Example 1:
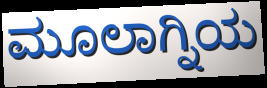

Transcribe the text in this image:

ಮೂಲಾಗ್ನಿಯ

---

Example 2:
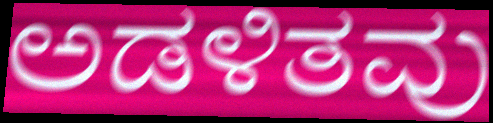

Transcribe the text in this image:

ಅಡಳಿತವು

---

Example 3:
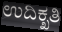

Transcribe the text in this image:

ಉದಿಕ್ಖತಿ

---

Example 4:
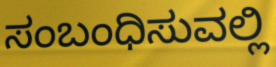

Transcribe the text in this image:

ಸಂಬಂಧಿಸುವಲ್ಲಿ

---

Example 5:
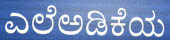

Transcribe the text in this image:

ಎಲೆಅಡಿಕೆಯ